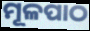
ମୂଳପାଠ